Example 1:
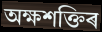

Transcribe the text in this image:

অক্ষশক্তিৰ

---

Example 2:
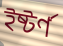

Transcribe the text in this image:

ইষ্টৰ্ণ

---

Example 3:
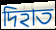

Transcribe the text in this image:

দিহাত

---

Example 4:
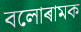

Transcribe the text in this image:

বলোৰামক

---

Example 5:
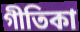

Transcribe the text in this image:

গীতিকা